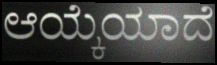
ಆಯ್ಕೆಯಾದೆ